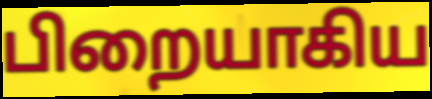
பிறையாகிய